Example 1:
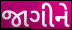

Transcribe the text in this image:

જાગીને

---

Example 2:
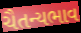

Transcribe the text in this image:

ચૈતન્યભાવ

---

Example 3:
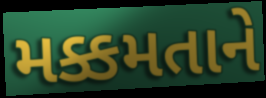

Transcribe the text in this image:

મક્કમતાને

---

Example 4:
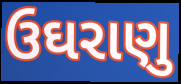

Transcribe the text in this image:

ઉઘરાણુ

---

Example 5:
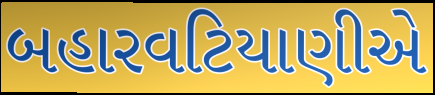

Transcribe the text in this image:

બહારવટિયાણીએ